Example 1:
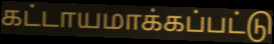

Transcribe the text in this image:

கட்டாயமாக்கப்பட்டு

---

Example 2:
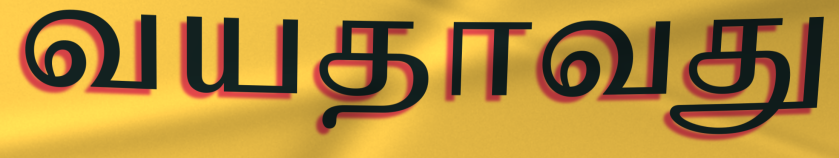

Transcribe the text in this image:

வயதாவது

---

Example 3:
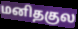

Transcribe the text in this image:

மனிதகுல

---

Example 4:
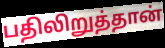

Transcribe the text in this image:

பதிலிறுத்தான்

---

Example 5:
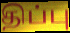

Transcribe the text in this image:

திப்பு